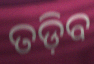
ତଡ଼ିବ